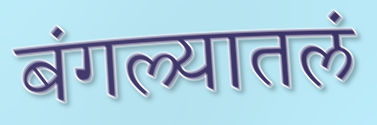
बंगल्यातलं